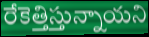
రేకెత్తిస్తున్నాయని